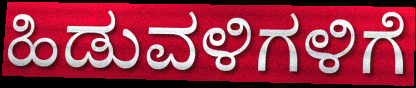
ಹಿಡುವಳಿಗಳಿಗೆ